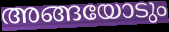
അങ്ങയോടും